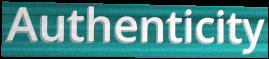
Authenticity